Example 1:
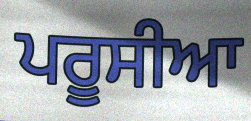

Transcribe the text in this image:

ਪਰੂਸੀਆ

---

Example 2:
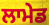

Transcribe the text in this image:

ਲਾਮੇਡ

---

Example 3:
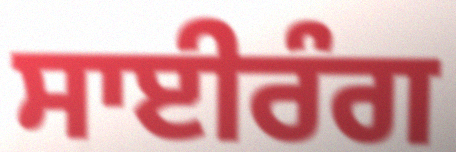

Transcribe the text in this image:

ਸਾਈਰੰਗ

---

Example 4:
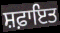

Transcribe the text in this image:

ਸ਼ਫ਼ਾਇਤ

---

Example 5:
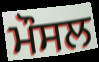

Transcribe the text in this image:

ਮੌਸਲ